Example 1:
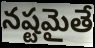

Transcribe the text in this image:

నష్టమైతే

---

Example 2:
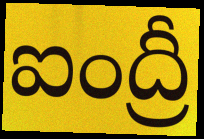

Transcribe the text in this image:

ఐంద్రీ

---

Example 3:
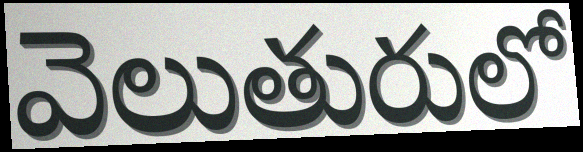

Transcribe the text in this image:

వెలుతురులో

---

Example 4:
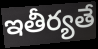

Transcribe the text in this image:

ఇతీర్యతే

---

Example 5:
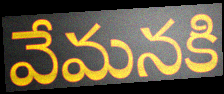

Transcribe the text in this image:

వేమనకి